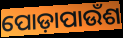
ପୋଡ଼ାପାଉଁଶ